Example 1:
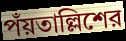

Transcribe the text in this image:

পঁয়তাল্লিশের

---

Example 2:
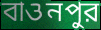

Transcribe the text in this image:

বাওনপুর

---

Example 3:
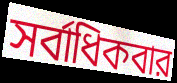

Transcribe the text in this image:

সর্বাধিকবার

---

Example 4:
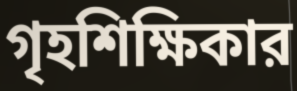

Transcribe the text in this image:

গৃহশিক্ষিকার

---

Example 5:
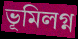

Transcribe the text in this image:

ভূমিলগ্ন